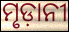
ମୃଡ଼ାନୀ